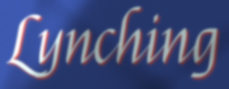
Lynching